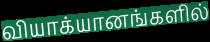
வியாக்யானங்களில்